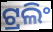
ଟ୍ରଲିଂ